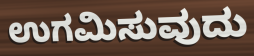
ಉಗಮಿಸುವುದು